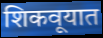
शिकवूयात